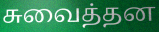
சுவைத்தன